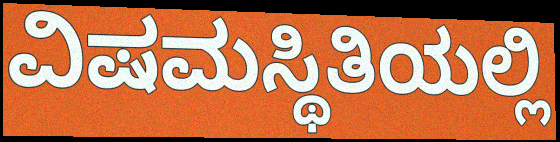
ವಿಷಮಸ್ಥಿತಿಯಲ್ಲಿ